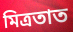
মিত্ৰতাত